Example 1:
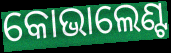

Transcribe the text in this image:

କୋଭାଲେଣ୍ଟ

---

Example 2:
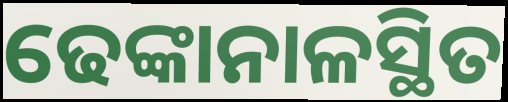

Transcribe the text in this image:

ଢେଙ୍କାନାଳସ୍ଥିତ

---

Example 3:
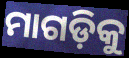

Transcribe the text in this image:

ମାଗଡ଼ିକୁ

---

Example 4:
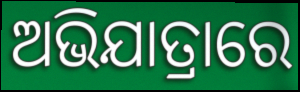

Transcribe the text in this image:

ଅଭିଯାତ୍ରାରେ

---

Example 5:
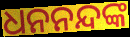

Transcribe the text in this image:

ଧନନନ୍ଦଙ୍କ